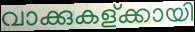
വാക്കുകള്ക്കായി